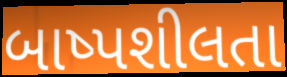
બાષ્પશીલતા